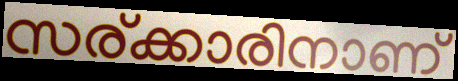
സര്ക്കാരിനാണ്